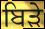
ਬਿੜੇ